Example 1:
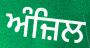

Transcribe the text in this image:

ਅੰਜ਼ਿਲ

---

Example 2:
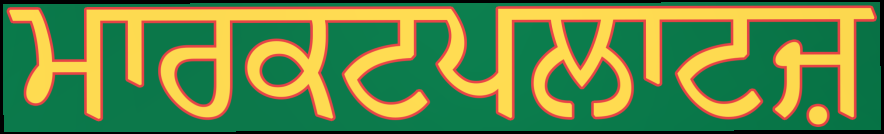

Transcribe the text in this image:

ਮਾਰਕਟਪਲਾਟਜ਼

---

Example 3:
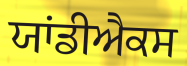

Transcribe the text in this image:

ਯਾਂਡੀਐਕਸ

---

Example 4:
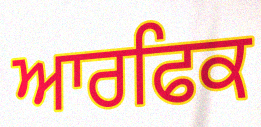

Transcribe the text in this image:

ਆਰਫਿਕ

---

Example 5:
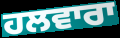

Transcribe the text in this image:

ਹਲਵਾਰਾ